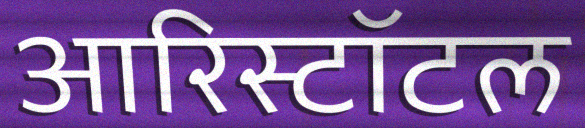
आरिस्टॉटल